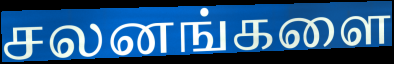
சலனங்களை